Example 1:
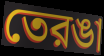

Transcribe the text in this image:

তেরঙা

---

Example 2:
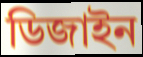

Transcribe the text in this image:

ডিজাইন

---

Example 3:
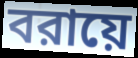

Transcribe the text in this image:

বরায়ে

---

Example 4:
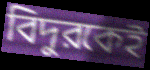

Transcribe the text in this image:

বিদুরকেই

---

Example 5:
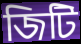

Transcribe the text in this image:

জিটি